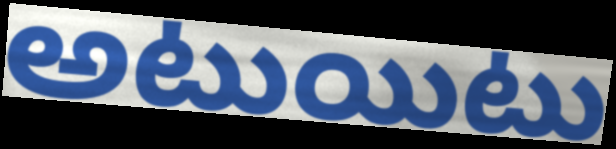
అటుయిటు